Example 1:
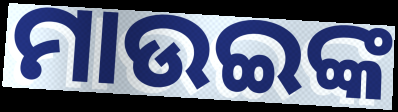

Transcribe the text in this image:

ମାଉଇଙ୍କ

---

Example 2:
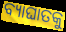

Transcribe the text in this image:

ବ୍ୟାଘାତକୁ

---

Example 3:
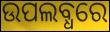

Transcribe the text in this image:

ଉପଲବ୍ଧରେ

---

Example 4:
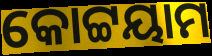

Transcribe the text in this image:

କୋଟ୍ଟୟାମ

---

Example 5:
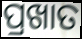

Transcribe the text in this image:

ପ୍ରଖାତ